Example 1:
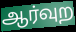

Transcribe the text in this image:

ஆர்வுற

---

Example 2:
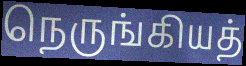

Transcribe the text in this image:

நெருங்கியத்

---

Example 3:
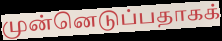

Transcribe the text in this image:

முன்னெடுப்பதாகக்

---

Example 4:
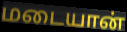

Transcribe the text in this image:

மடையான்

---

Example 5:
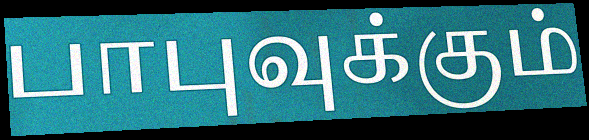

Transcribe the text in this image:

பாபுவுக்கும்